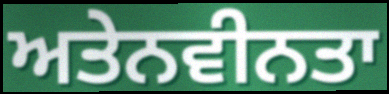
ਅਤੇਨਵੀਨਤਾ